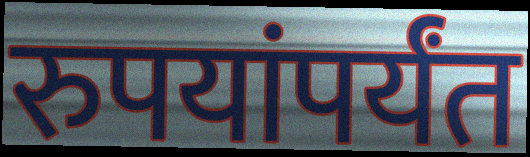
रुपयांपर्यंत